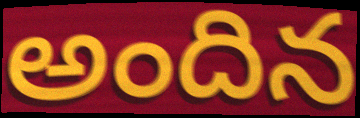
అందిన